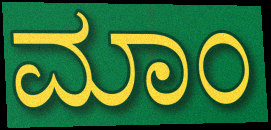
ಮಾಂ